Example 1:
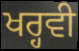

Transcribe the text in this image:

ਖਰ੍ਹਵੀ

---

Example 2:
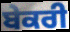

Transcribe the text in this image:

ਬੇਕਰੀ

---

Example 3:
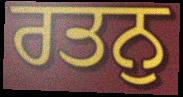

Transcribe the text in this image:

ਰਤਨੁ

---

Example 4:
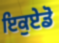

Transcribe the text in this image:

ਇਕੁਏਡੋ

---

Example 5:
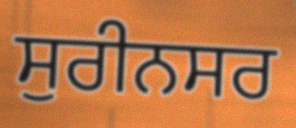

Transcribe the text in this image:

ਸੁਰੀਨਸਰ